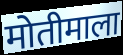
मोतीमाला